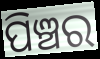
ପିଞ୍ଚର